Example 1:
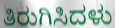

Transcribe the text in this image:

ತಿರುಗಿಸಿದಳು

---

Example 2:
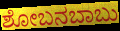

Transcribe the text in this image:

ಶೋಬನಬಾಬು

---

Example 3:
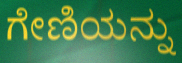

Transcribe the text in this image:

ಗೇಣಿಯನ್ನು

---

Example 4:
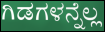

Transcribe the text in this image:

ಗಿಡಗಳನ್ನೆಲ್ಲ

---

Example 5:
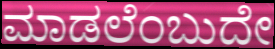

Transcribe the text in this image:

ಮಾಡಲೆಂಬುದೇ